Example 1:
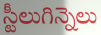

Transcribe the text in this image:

స్టీలుగిన్నెలు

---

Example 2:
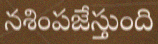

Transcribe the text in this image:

నశింపజేస్తుంది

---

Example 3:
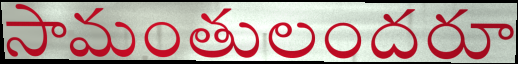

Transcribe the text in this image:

సామంతులందరూ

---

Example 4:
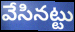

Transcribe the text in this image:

వేసినట్టు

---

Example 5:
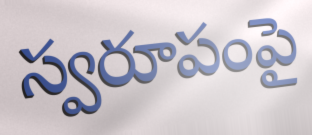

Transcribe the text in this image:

స్వరూపంపై